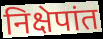
निक्षेपांत